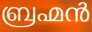
ബ്രഹ്മൻ